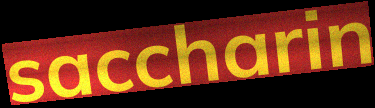
saccharin